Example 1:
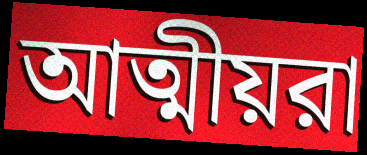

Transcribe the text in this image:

আত্মীয়রা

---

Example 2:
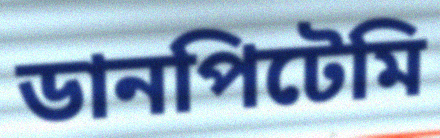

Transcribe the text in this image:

ডানপিটেমি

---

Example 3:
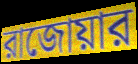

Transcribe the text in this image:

রাজোয়ার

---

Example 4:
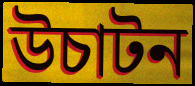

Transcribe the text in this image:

উচাটন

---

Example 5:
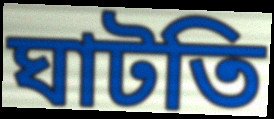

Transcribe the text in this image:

ঘাটতি